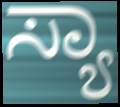
ಸ್ಯಾ